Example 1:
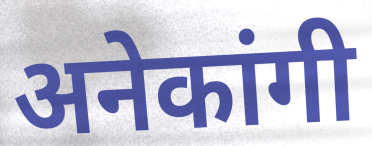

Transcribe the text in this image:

अनेकांगी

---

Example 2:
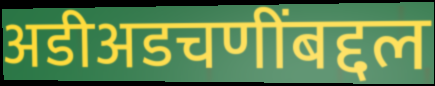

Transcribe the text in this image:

अडीअडचणींबद्दल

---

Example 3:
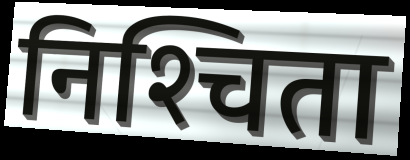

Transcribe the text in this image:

निश्चिता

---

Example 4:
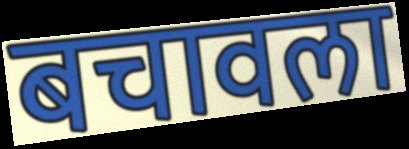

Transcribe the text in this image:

बचावला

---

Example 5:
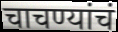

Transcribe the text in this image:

चाचण्यांचं